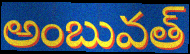
అంబువత్